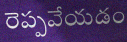
రెప్పవేయడం